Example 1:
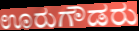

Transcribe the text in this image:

ಊರುಗೌಡರು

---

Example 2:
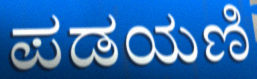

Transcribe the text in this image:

ಪಡಯಣಿ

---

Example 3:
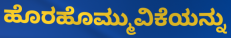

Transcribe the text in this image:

ಹೊರಹೊಮ್ಮುವಿಕೆಯನ್ನು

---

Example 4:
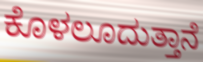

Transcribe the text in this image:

ಕೊಳಲೂದುತ್ತಾನೆ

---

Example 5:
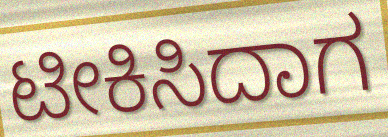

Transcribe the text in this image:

ಟೀಕಿಸಿದಾಗ